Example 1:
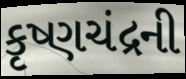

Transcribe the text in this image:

કૃષ્ણચંદ્રની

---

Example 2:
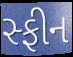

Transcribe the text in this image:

સ્ફીન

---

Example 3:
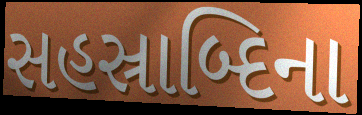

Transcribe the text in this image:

સહસ્રાબ્દિના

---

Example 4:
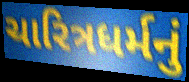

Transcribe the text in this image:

ચારિત્રધર્મનું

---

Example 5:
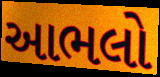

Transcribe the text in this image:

આભલો